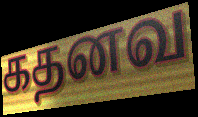
கதனவ